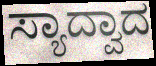
ಸ್ಯಾದ್ವಾದ